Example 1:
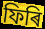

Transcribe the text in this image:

ফিৰি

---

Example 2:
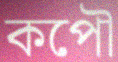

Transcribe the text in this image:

কপৌ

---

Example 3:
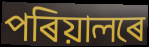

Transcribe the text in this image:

পৰিয়ালৰে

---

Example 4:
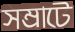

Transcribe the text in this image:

সম্ৰাটে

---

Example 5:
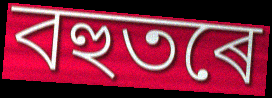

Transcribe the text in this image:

বহুতৰে